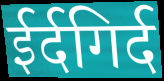
ईर्दगिर्द